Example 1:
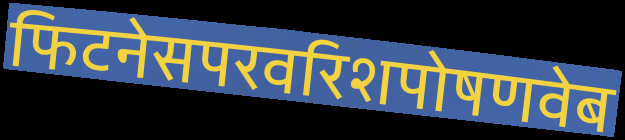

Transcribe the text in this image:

फिटनेसपरवरिशपोषणवेब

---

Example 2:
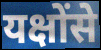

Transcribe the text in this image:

यक्षोंसे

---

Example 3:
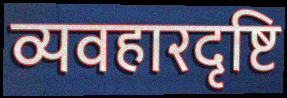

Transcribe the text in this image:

व्यवहारदृष्टि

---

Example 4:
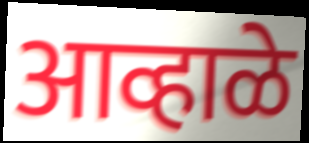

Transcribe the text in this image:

आव्हाळे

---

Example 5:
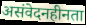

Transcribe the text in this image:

असंवेदनहीनता